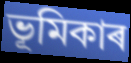
ভূমিকাৰ